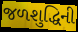
જળશુદ્ધિની